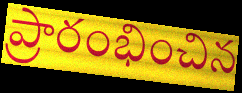
ప్రారంభించిన